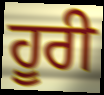
ਹੂਰੀ